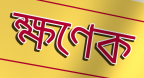
ক্ষণেক